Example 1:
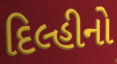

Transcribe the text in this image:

દિલ્હીનો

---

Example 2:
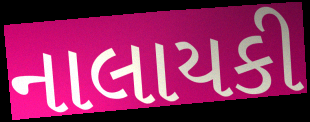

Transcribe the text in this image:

નાલાયકી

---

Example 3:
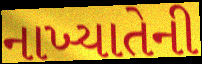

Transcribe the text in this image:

નાખ્યાતેની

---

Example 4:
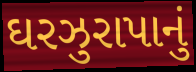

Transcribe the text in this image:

ઘરઝુરાપાનું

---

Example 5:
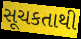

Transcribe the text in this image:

સૂચકતાથી